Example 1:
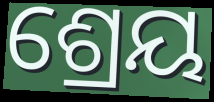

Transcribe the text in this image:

ଶ୍ରେୟ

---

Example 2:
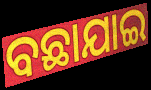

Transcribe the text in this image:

ବଛାଯାଇ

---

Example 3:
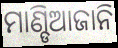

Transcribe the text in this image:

ମାଣ୍ଡିଆଜାନି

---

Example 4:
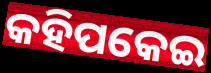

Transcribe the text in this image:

କହିପକେଇ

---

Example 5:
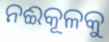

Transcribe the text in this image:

ନଈକୂଳକୁ